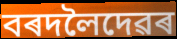
বৰদলৈদেৱৰ